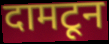
दामटून